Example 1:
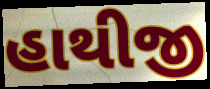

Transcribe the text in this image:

હાથીજી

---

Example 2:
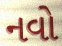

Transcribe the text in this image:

નવો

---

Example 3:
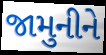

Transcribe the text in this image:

જામુનીને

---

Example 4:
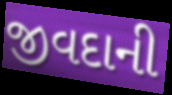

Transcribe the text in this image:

જીવદાની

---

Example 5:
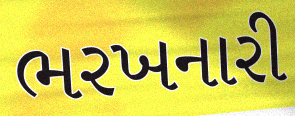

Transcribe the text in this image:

ભરખનારી